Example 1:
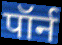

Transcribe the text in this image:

पॉर्न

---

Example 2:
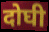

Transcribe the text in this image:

दोघी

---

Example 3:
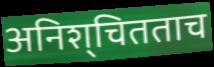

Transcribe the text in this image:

अनिश्चितताच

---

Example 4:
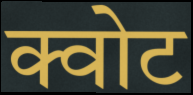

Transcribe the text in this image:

क्वोट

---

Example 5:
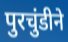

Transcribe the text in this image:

पुरचुंडीने